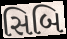
સિબિ